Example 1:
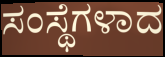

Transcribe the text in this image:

ಸಂಸ್ಥೆಗಳಾದ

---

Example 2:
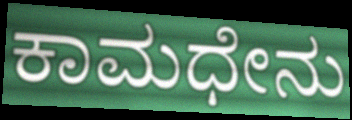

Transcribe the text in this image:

ಕಾಮಧೇನು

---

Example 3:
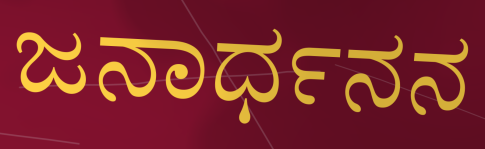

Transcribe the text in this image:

ಜನಾರ್ಧನನ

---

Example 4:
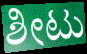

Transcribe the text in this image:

ಶೀಟು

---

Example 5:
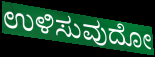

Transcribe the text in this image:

ಉಳಿಸುವುದೋ